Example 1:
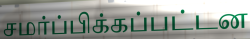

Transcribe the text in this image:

சமர்ப்பிக்கப்பட்டன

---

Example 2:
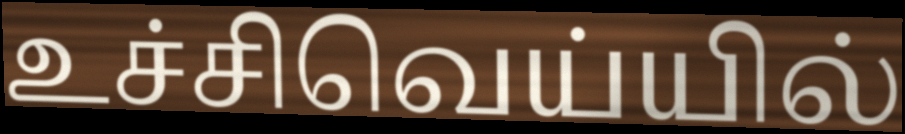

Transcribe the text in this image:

உச்சிவெய்யில்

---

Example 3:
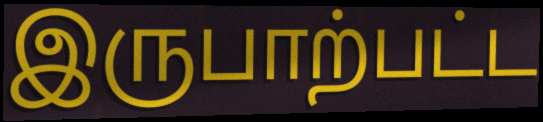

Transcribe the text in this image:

இருபாற்பட்ட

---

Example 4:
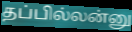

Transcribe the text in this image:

தப்பில்லன்னு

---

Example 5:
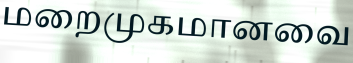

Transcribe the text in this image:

மறைமுகமானவை